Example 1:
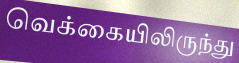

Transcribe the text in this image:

வெக்கையிலிருந்து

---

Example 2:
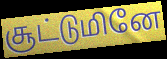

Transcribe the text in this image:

சூட்டுமினே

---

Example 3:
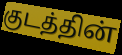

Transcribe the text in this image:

குடத்தின்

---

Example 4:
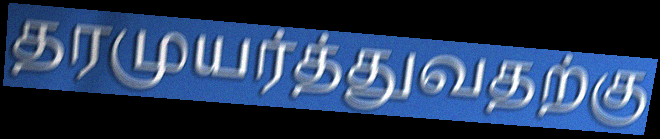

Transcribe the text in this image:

தரமுயர்த்துவதற்கு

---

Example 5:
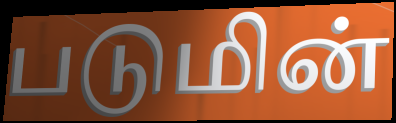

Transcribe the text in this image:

படுமின்